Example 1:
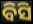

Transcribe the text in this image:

ବିସି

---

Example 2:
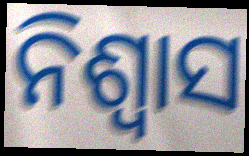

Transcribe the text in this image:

ନିଶ୍ଵାସ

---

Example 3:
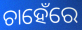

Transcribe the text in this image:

ଚାହେଁରେ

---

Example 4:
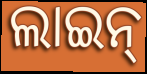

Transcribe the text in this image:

ଲାଇନ୍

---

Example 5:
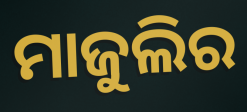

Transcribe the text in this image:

ମାଜୁଲିର